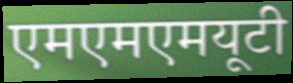
एमएमएमयूटी